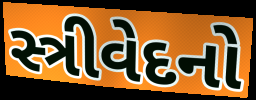
સ્ત્રીવેદનો